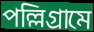
পল্লিগ্রামে